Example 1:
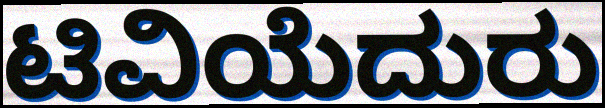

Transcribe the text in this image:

ಟಿವಿಯೆದುರು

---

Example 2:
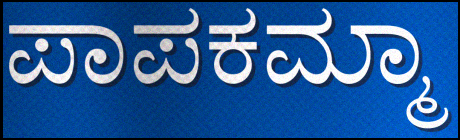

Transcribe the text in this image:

ಪಾಪಕಮ್ಮಾ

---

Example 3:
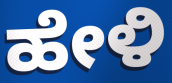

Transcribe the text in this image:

ಹೇಳಿ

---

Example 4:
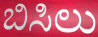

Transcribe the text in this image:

ಬಿಸಿಲು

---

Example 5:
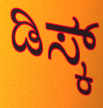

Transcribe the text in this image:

ಡಿಸ್ಕ್